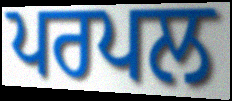
ਪਰਪਲ